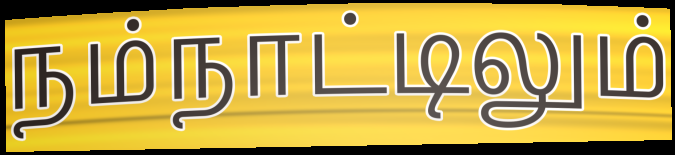
நம்நாட்டிலும்